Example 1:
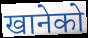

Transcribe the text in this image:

खानेको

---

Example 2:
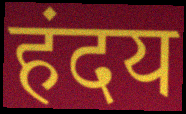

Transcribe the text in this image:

हंदय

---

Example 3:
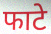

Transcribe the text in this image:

फाटे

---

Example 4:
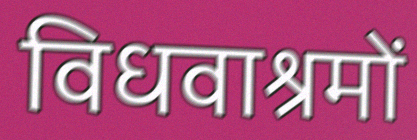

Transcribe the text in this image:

विधवाश्रमों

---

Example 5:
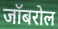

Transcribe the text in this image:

जॉबरोल